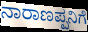
ನಾರಾಣಪ್ಪನಿಗೆ